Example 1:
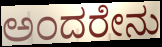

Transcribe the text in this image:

ಅಂದರೇನು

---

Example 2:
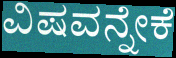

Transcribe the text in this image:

ವಿಷವನ್ನೇಕೆ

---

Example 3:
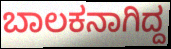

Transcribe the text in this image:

ಬಾಲಕನಾಗಿದ್ದ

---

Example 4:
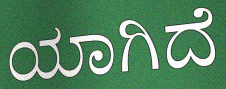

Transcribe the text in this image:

ಯಾಗಿದೆ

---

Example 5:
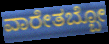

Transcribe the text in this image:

ವಾರೇತಬ್ಬೋ